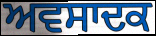
ਅਵਸਾਦਕ